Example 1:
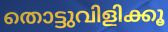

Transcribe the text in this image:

തൊട്ടുവിളിക്കൂ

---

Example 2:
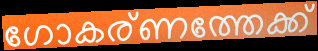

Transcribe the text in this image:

ഗോകര്ണത്തേക്ക്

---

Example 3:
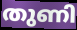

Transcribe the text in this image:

തുണി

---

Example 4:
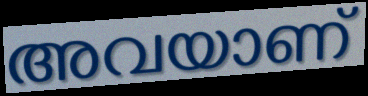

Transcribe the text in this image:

അവയാണ്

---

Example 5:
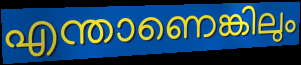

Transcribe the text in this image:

എന്താണെങ്കിലും